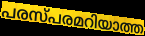
പരസ്പരമറിയാത്ത